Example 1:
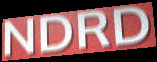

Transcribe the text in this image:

NDRD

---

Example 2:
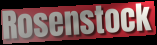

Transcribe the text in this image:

Rosenstock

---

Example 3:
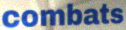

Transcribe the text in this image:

combats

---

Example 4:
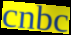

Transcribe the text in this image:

cnbc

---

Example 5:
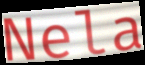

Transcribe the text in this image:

Nela